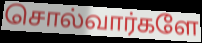
சொல்வார்களே